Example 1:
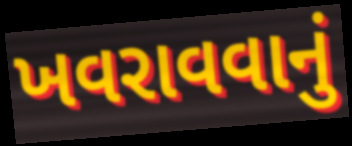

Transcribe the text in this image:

ખવરાવવાનું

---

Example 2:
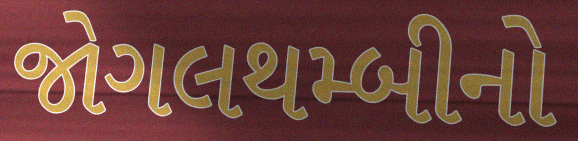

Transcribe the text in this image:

જોગલથમ્બીનો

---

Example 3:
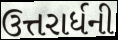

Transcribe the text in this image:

ઉત્તરાર્ધની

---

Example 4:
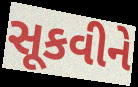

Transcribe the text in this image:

સૂકવીને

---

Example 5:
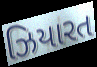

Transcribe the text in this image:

ઝિયારત